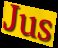
Jus